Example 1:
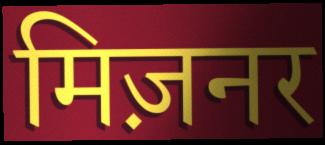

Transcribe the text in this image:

मिज़नर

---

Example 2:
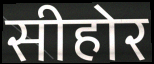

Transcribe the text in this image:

सीहोर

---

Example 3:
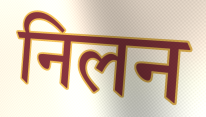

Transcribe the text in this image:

निलन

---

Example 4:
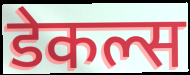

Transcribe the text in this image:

डेकल्स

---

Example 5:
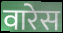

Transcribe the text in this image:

वारेस